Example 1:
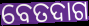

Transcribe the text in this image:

ବେତଦାଗ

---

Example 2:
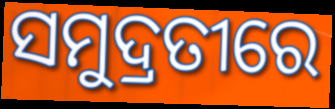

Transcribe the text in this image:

ସମୁଦ୍ରତୀରେ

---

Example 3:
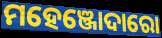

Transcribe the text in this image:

ମହେଞ୍ଜୋଦାରୋ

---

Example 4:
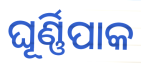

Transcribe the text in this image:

ଘୂର୍ଣ୍ଣିପାକ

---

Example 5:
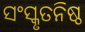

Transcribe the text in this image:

ସଂସ୍କୃତନିଷ୍ଠ